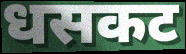
धसकट